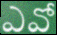
ఎవో